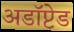
अडॉप्टेड